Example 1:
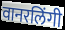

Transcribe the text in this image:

वानरलिंगी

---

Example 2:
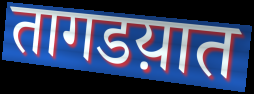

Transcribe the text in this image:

तागडय़ात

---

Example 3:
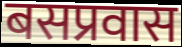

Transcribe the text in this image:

बसप्रवास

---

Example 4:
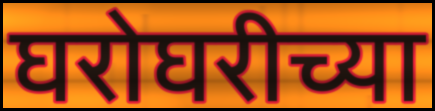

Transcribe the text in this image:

घरोघरीच्या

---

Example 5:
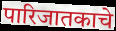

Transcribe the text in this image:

पारिजातकाचे